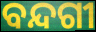
ବନ୍ଦଗୀ